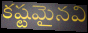
కష్టమైనవి